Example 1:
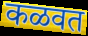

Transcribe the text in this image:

कळवत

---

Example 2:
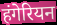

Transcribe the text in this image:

हंगेरियन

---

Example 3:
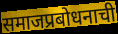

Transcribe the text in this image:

समाजप्रबोधनाची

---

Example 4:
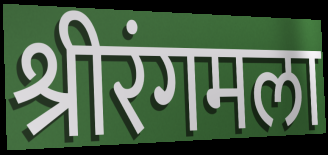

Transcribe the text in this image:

श्रीरंगमला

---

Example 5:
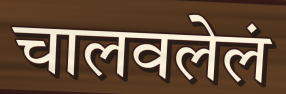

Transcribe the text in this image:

चालवलेलं